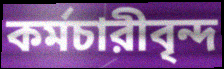
কর্মচারীবৃন্দ